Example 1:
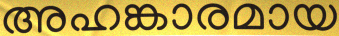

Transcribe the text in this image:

അഹങ്കാരമായ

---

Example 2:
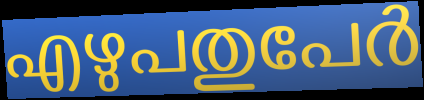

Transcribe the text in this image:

എഴുപതുപേർ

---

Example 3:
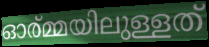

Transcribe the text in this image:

ഓര്മ്മയിലുള്ളത്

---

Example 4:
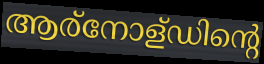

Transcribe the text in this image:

ആര്നോള്ഡിന്റെ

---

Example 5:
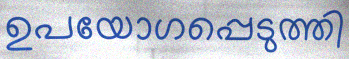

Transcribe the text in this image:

ഉപയോഗപ്പെടുത്തി